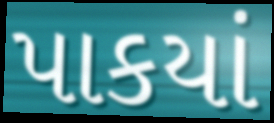
પાકયાં